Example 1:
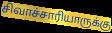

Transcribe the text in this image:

சிவாச்சாரியாருக்கு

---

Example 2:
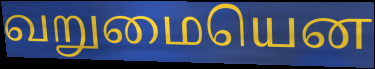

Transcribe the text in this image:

வறுமையென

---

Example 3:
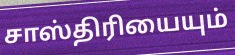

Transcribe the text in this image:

சாஸ்திரியையும்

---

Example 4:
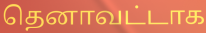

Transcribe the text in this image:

தெனாவட்டாக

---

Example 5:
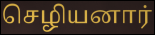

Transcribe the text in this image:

செழியனார்